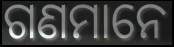
ଗଣମାନେ